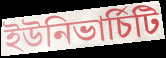
ইউনিভাৰ্চিটি